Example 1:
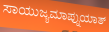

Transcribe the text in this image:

ಸಾಯುಜ್ಯಮಾಪ್ನುಯಾತ್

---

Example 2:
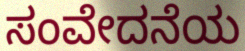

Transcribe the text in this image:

ಸಂವೇದನೆಯ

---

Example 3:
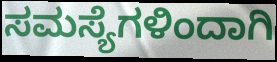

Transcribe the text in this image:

ಸಮಸ್ಯೆಗಳಿಂದಾಗಿ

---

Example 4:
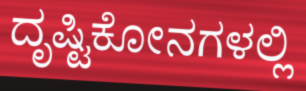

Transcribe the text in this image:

ದೃಷ್ಟಿಕೋನಗಳಲ್ಲಿ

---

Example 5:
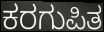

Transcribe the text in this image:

ಕರಗುಪಿತ